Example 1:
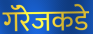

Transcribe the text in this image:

गॅरेजकडे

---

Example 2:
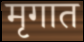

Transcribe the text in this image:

मृगात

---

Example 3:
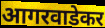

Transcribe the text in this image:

आगरवाडेकर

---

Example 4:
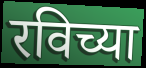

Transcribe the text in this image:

रविच्या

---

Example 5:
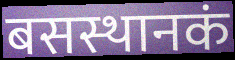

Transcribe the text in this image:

बसस्थानकं